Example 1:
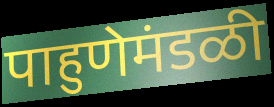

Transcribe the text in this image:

पाहुणेमंडळी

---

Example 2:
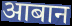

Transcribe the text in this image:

आबान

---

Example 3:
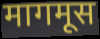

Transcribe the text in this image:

मागमूस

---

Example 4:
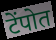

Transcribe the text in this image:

टेंपोत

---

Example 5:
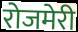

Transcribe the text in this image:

रोजमेरी